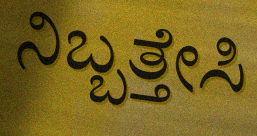
ನಿಬ್ಬತ್ತೇಸಿ